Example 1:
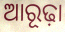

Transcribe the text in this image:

ଆରୂଢ଼ା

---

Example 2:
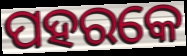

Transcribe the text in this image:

ପହରକେ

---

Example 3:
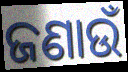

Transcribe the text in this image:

ଜଣାଉଁ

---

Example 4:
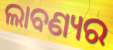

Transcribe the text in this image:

ଲାବଣ୍ୟର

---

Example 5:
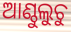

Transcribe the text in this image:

ଆଣ୍ଠୁଲୁଚୁ